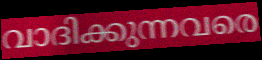
വാദിക്കുന്നവരെ